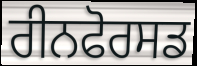
ਰੀਨਫੋਰਸਡ